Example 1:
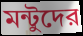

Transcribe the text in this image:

মন্টুদের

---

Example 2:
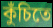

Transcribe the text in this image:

কুঁচিতে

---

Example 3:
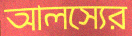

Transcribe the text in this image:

আলস্যের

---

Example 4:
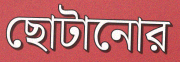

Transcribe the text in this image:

ছোটানোর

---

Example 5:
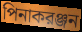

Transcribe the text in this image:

পিনাকরঞ্জন